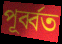
পূৰ্ব্বত